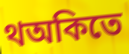
থঅকিতে